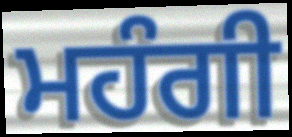
ਮਹੰਗੀ